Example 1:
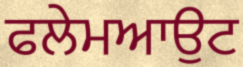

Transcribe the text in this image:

ਫਲੇਮਆਉਟ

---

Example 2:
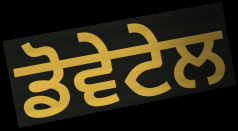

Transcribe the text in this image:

ਡੋਵੇਟੇਲ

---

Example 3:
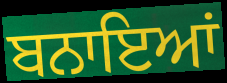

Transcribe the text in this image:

ਬਨਾਇਆਂ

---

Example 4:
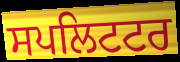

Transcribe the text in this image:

ਸਪਲਿਟਟਰ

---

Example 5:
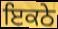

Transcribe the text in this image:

ਇਕਠੇ